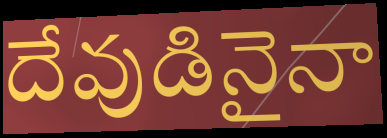
దేవుడినైనా